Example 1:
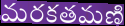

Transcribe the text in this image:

మరకతమణి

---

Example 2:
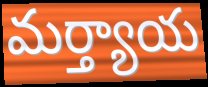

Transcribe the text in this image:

మర్త్యాయ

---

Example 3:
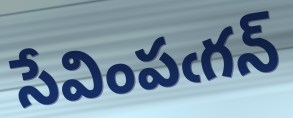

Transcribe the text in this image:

సేవింపఁగన్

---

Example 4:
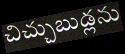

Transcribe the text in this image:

చిచ్చుబుడ్లను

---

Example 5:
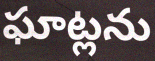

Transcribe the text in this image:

ఘాట్లను